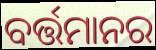
ବର୍ତ୍ତମାନର